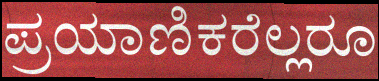
ಪ್ರಯಾಣಿಕರೆಲ್ಲರೂ